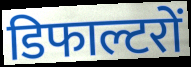
डिफाल्टरों